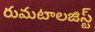
రుమటాలజిస్ట్